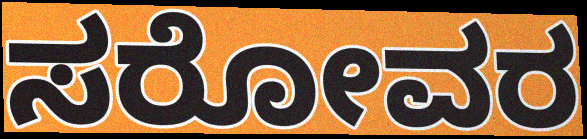
ಸರೋವರ